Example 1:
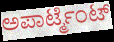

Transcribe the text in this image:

ಅಪಾರ್ಟ್ಮೆಂಟ್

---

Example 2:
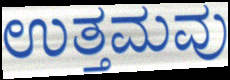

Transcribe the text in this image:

ಉತ್ತಮವು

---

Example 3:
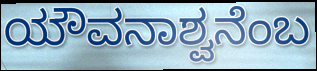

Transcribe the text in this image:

ಯೌವನಾಶ್ವನೆಂಬ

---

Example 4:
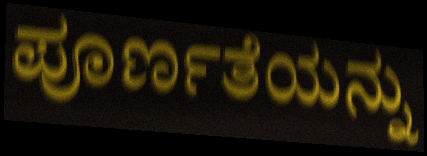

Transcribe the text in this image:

ಪೂರ್ಣತೆಯನ್ನು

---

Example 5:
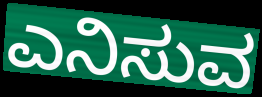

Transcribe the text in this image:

ಎನಿಸುವ